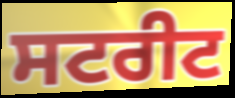
ਸਟਰੀਟ